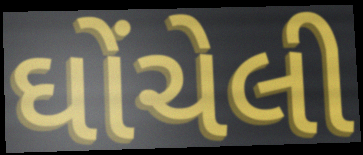
ઘોંચેલી